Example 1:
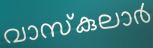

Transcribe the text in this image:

വാസ്കുലാർ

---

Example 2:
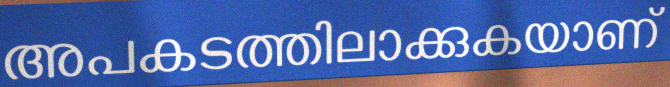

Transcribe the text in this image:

അപകടത്തിലാക്കുകയാണ്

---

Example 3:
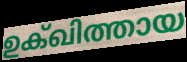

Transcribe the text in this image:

ഉക്ഖിത്തായ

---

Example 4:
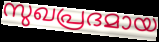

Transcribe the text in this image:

സുഖപ്രദമായ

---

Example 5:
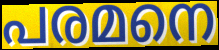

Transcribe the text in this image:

പരമനെ